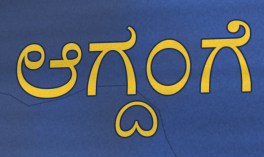
ಆಗ್ದಂಗೆ